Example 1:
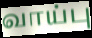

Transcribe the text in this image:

வாய்பு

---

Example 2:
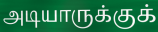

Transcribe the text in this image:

அடியாருக்குக்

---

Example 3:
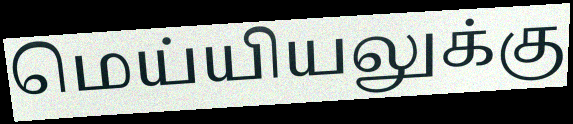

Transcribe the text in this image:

மெய்யியலுக்கு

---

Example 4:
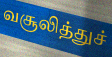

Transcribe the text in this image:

வசூலித்துச்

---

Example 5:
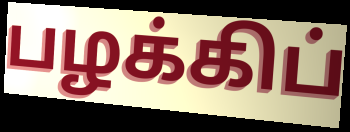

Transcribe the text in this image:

பழக்கிப்